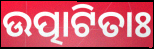
ଉତ୍ପାଟିତାଃ